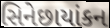
સિનેછાયાંકન